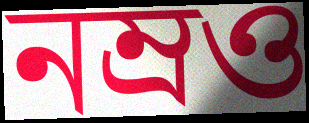
নম্রও